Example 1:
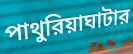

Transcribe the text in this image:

পাথুরিয়াঘাটার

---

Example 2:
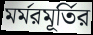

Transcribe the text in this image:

মর্মরমূর্তির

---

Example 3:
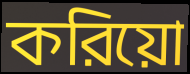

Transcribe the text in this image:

করিয়ো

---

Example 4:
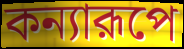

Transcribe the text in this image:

কন্যারূপে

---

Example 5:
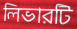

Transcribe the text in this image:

লিভারটি